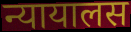
न्यायालस